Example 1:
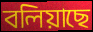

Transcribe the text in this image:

বলিয়াছে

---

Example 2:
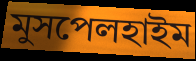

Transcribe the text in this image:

মুসপেলহাইম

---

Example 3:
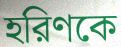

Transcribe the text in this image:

হরিণকে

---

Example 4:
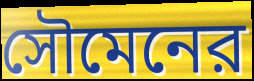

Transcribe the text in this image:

সৌমেনের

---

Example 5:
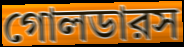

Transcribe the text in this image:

গোলডারস